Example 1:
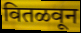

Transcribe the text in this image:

वितळवून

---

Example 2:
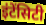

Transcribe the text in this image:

इंटेंसिटी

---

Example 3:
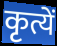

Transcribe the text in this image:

कृत्यें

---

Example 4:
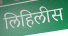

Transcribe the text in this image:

लिहिलीस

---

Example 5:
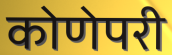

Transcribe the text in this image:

कोणेपरी